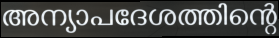
അന്യാപദേശത്തിന്റെ